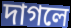
দাগলে